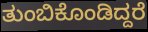
ತುಂಬಿಕೊಂಡಿದ್ದರೆ